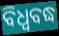
ବିଧ୍ଵବଦ୍ଧ